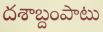
దశాబ్దంపాటు